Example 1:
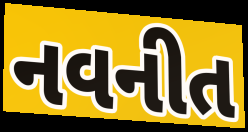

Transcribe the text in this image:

નવનીત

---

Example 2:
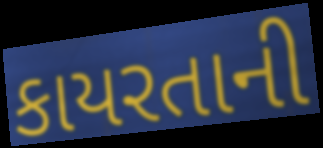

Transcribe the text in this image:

કાયરતાની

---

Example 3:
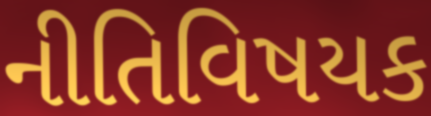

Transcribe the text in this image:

નીતિવિષયક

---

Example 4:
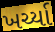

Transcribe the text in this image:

ખર્ચ્યા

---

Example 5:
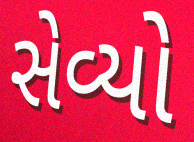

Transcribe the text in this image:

સેવ્યો